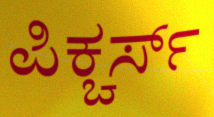
ಪಿಕ್ಚರ್ಸ್